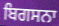
ਬਿਗਸਨਾ